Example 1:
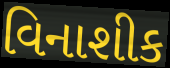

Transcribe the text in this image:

વિનાશીક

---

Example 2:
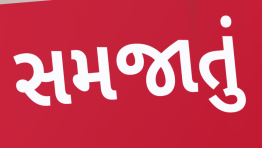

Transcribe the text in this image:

સમજાતું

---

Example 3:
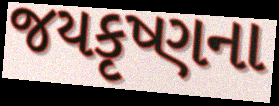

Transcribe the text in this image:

જયકૃષ્ણના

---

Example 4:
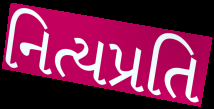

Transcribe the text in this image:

નિત્યપ્રતિ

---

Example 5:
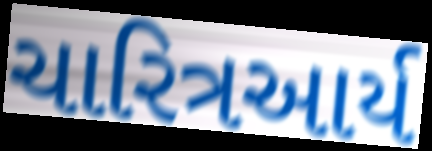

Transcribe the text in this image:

ચારિત્રઆર્ય